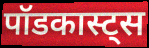
पॉडकास्ट्स